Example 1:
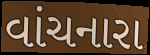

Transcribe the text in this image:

વાંચનારા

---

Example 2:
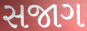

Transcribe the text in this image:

સજાગ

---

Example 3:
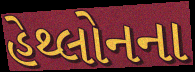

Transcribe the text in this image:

હેથ્લોનના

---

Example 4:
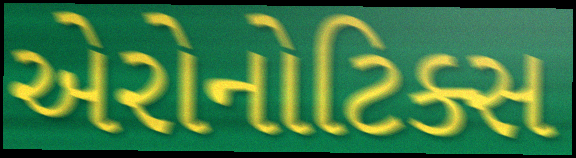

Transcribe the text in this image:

એરોનોટિક્સ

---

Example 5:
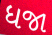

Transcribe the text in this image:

ધજા